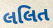
લલિત